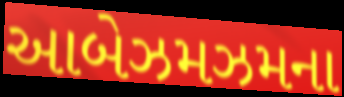
આબેઝમઝમના